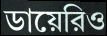
ডায়েরিও